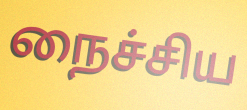
நைச்சிய